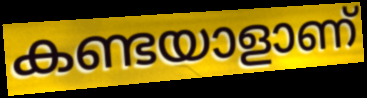
കണ്ടയാളാണ്